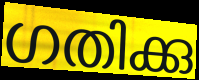
ഗതിക്കു